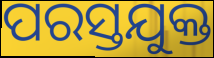
ପରସ୍ତଯୁକ୍ତ